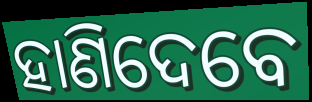
ହାଣିଦେବେ